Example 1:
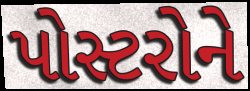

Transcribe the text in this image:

પોસ્ટરોને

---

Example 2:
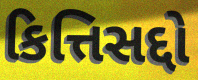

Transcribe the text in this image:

કિત્તિસદ્દો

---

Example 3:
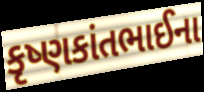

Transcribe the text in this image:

કૃષ્ણકાંતભાઈના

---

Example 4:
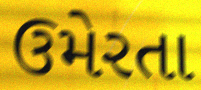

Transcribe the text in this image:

ઉમેરતા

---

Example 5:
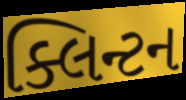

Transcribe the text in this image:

ક્લિન્ટન